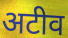
अटीव